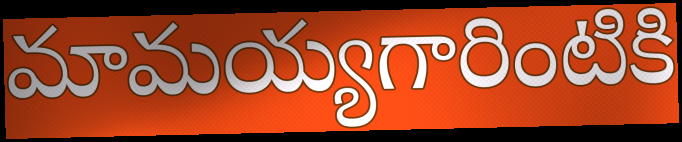
మామయ్యగారింటికి